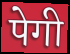
पेगी